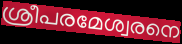
ശ്രീപരമേശ്വരനെ